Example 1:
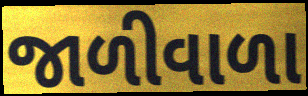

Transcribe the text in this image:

જાળીવાળા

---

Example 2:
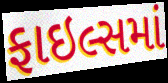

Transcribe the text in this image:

ફાઇલ્સમાં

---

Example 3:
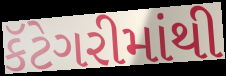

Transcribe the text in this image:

કૅટેગરીમાંથી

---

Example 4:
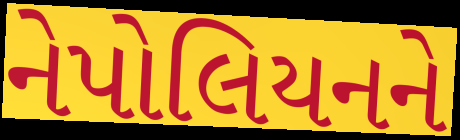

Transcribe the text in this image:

નેપોલિયનને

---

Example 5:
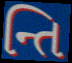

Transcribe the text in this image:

ન્તિ